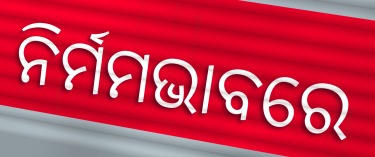
ନିର୍ମମଭାବରେ